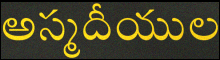
అస్మదీయుల